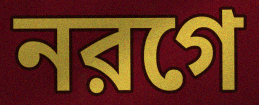
নরগে